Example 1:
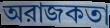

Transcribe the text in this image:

অরাজকতা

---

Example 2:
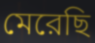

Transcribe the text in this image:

মেরেছি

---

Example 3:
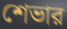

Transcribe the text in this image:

শেভার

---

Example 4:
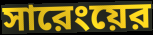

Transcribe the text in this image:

সারেংয়ের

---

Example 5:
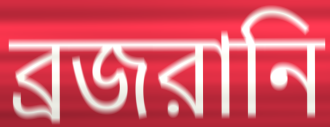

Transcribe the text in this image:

ব্রজরানি